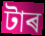
টাৰ